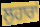
ਲੁਹਾਰਾਂ